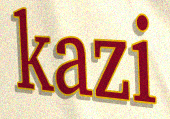
kazi